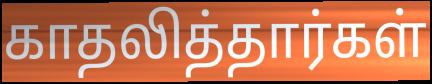
காதலித்தார்கள்